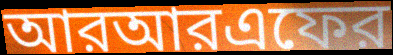
আরআরএফের